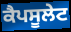
ਕੈਪਸੂਲੇਟ